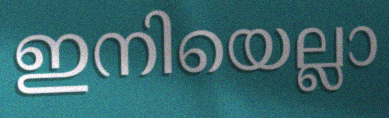
ഇനിയെല്ലാ